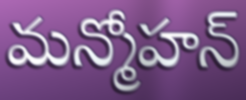
మన్మోహన్